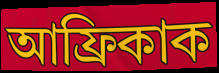
আফ্ৰিকাক